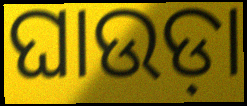
ଘାଉଡ଼ା